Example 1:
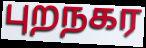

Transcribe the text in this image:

புறநகர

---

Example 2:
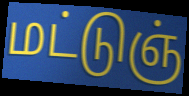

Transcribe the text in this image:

மட்டுஞ்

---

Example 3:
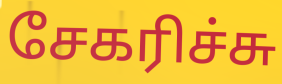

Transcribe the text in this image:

சேகரிச்சு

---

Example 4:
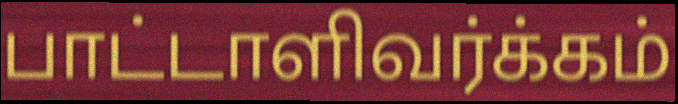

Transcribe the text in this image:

பாட்டாளிவர்க்கம்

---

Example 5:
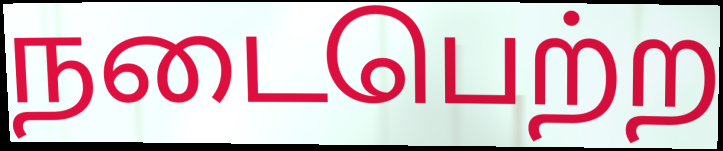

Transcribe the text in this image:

நடைபெற்ற